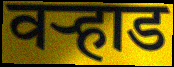
वर्‍हाड